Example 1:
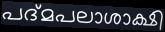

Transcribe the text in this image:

പദ്മപലാശാക്ഷി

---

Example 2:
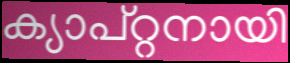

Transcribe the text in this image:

ക്യാപ്റ്റനായി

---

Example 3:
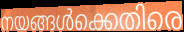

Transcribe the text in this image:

നയങ്ങൾക്കെതിരെ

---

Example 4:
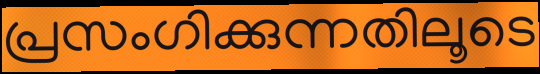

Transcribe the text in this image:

പ്രസംഗിക്കുന്നതിലൂടെ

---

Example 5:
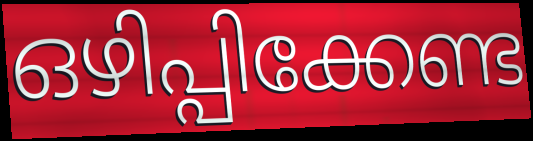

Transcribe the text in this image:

ഒഴിപ്പിക്കേണ്ട